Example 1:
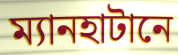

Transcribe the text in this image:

ম্যানহাটানে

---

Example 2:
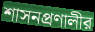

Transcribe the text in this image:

শাসনপ্রণালীর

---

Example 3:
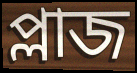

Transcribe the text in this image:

প্লাজ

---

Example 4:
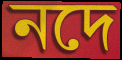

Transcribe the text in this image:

নদে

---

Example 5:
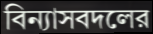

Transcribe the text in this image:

বিন্যাসবদলের